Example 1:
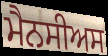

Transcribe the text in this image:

ਮੈਨਸੀਅਸ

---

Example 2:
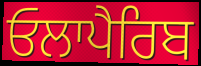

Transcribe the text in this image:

ਓਲਾਪੈਰਿਬ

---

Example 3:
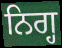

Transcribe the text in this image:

ਨਿਗ੍ਹ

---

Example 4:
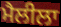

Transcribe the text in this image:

ਮੈਲੀਲਾ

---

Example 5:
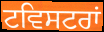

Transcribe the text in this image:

ਟਵਿਸਟਰਾਂ